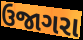
ઉજાગરા